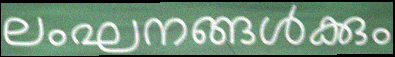
ലംഘനങ്ങൾക്കും